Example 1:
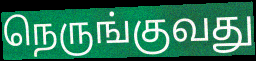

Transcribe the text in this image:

நெருங்குவது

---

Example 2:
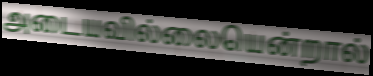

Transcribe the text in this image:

அடையவில்லையென்றால்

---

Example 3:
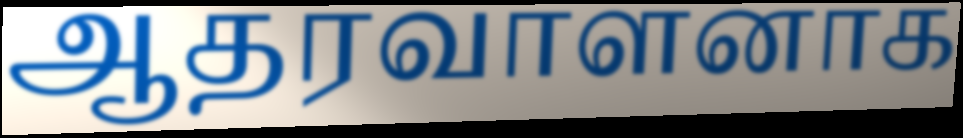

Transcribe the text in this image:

ஆதரவாளனாக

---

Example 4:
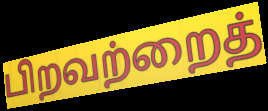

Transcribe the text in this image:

பிறவற்றைத்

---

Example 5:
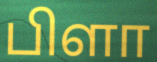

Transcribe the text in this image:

பிளா